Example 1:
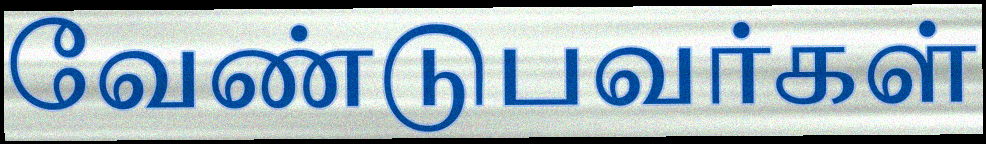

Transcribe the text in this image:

வேண்டுபவர்கள்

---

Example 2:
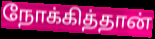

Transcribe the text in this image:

நோக்கித்தான்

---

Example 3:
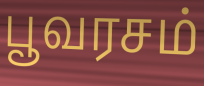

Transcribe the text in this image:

பூவரசம்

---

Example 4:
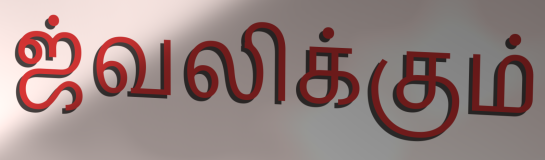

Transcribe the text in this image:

ஜ்வலிக்கும்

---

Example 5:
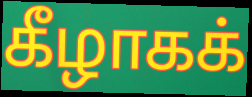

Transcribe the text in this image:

கீழாகக்